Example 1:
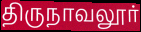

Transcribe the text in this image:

திருநாவலூர்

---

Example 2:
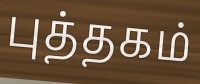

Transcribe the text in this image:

புத்தகம்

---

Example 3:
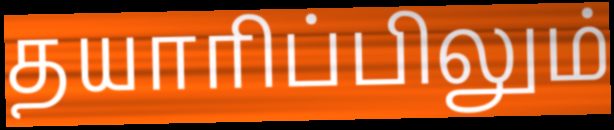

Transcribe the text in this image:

தயாரிப்பிலும்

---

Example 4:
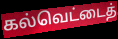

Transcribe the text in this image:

கல்வெட்டைத்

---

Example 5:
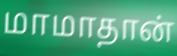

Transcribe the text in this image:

மாமாதான்